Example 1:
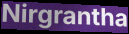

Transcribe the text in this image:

Nirgrantha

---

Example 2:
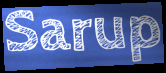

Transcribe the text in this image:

Sarup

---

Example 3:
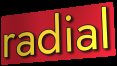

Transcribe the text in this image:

radial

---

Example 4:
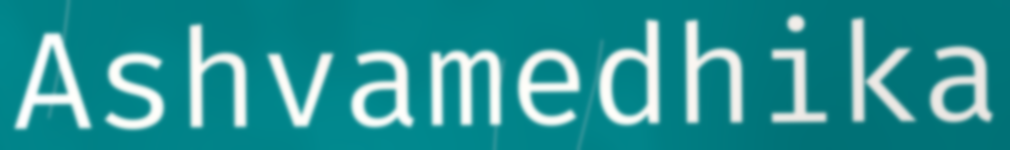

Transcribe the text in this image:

Ashvamedhika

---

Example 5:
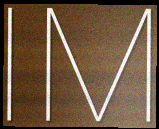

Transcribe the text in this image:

IM